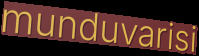
munduvarisi